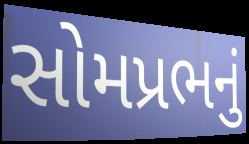
સોમપ્રભનું